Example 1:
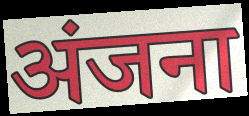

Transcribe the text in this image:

अंजना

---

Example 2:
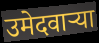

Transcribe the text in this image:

उमेदवार्‍या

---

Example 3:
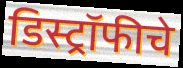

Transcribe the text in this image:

डिस्ट्रॉफीचे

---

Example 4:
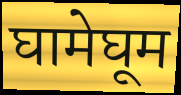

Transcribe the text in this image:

घामेघूम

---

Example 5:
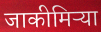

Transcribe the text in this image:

जाकीमिऱ्या